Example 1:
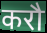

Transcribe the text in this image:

करौ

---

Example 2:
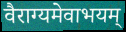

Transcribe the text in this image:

वैराग्यमेवाभयम्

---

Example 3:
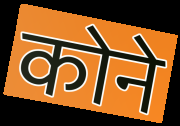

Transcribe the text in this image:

कोने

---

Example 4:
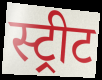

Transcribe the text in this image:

स्ट्रीट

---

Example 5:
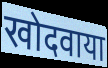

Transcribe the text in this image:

खोदवाया